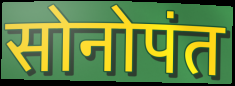
सोनोपंत